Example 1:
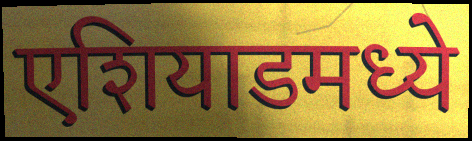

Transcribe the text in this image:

एशियाडमध्ये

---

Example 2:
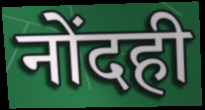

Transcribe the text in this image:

नोंदही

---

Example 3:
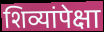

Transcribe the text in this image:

शिव्यांपेक्षा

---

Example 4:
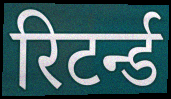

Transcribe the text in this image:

रिटर्न्ड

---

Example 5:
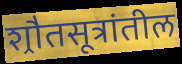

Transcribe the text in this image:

श्रौतसूत्रांतील